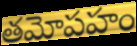
తమోపహం